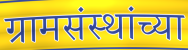
ग्रामसंस्थांच्या